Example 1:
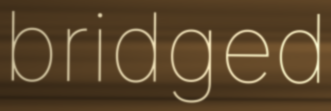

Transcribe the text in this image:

bridged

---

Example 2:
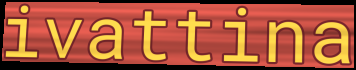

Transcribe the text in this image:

ivattina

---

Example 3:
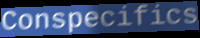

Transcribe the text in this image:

Conspecifics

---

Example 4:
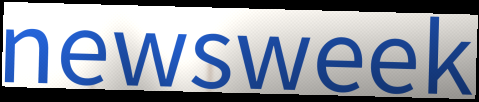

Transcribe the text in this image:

newsweek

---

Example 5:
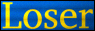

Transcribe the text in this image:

Loser